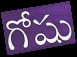
గోషు